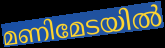
മണിമേടയിൽ